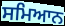
ਸਮਿਆਨ